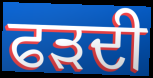
ਫੜਦੀ